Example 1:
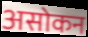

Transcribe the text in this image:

असोकन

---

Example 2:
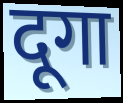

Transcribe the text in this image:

दूगा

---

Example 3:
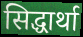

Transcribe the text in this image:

सिद्धार्था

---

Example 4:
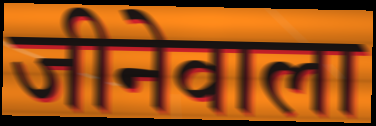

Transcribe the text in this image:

जीनेवाला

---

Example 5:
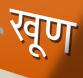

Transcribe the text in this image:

खूण